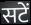
सटें